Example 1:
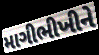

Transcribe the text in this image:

માગીભીખીને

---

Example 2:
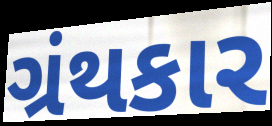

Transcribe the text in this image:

ગ્રંથકાર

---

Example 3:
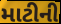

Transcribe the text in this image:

માટીની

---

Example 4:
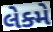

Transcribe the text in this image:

લેક્મે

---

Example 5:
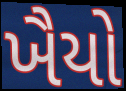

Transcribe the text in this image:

ખૈયો